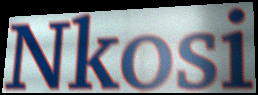
Nkosi